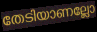
തേടിയാണല്ലോ